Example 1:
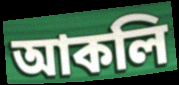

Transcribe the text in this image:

আকলি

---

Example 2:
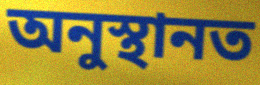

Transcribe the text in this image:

অনুস্থানত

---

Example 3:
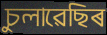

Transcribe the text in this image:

চুলাৱেছিৰ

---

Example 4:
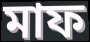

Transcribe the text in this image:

মাফ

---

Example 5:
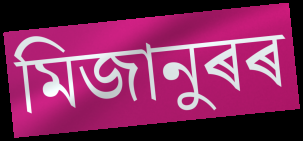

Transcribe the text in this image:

মিজানুৰৰ